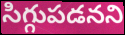
సిగ్గుపడనని